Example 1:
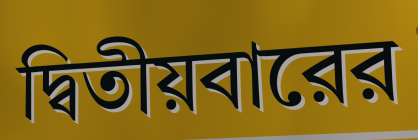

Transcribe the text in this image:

দ্বিতীয়বারের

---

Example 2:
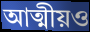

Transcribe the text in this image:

আত্মীয়ও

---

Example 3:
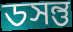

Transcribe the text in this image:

ডসন্তু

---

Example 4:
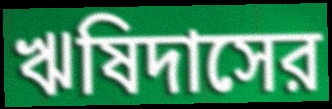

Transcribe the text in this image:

ঋষিদাসের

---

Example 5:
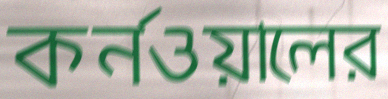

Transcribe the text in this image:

কর্নওয়ালের